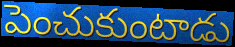
పెంచుకుంటాడు